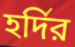
হর্দির